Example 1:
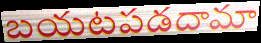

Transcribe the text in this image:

బయటపడదామా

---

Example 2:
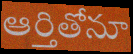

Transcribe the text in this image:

ఆర్తితోనూ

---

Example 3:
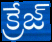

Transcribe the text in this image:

క్రేజ్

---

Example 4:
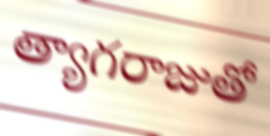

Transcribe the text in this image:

త్యాగరాజుతో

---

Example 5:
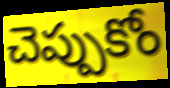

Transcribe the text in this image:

చెప్పుకోం